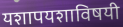
यशापयशाविषयी